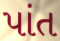
પાંત